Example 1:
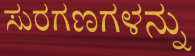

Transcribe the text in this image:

ಸುರಗಣಗಳನ್ನು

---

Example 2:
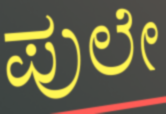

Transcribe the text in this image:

ಪುಲೇ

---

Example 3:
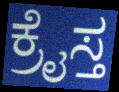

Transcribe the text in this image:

ಕ್ರೈಸ್ತ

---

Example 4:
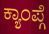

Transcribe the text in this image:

ಕ್ಯಾಂಪ್ಗೆ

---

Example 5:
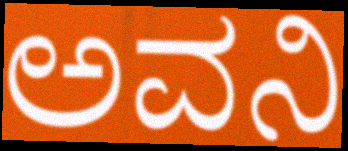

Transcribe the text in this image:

ಅವನಿ